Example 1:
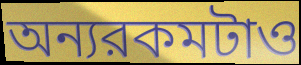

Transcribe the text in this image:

অন্যরকমটাও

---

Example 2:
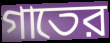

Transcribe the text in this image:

গাতের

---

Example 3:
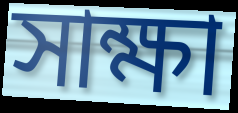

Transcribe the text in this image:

সাক্ষা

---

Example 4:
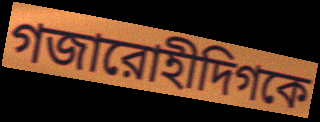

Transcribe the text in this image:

গজারোহীদিগকে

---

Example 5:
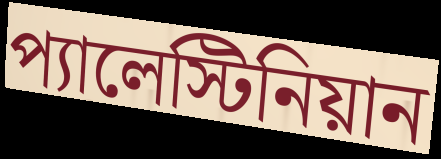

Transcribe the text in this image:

প্যালেস্টিনিয়ান